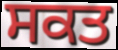
ਸਕਤ